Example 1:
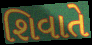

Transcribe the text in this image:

શિવાતે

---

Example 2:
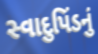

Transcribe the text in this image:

સ્વાદુપિંડનું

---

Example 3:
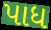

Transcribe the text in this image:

પાધ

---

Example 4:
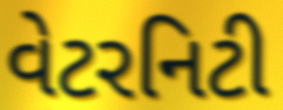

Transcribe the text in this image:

વેટરનિટી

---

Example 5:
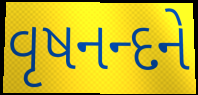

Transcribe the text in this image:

વૃષનન્દને